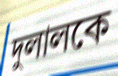
দুলালকে